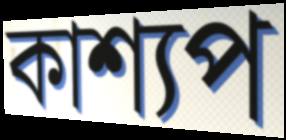
কাশ্যপ